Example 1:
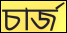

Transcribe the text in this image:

চার্জ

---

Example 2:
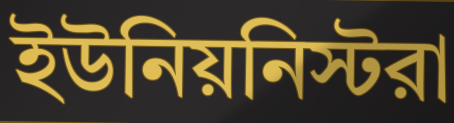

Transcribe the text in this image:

ইউনিয়নিস্টরা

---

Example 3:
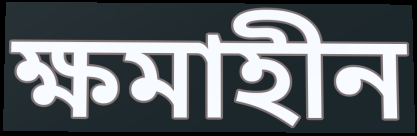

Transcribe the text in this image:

ক্ষমাহীন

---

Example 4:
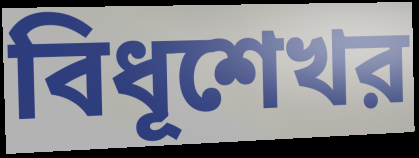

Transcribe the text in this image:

বিধূশেখর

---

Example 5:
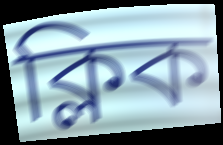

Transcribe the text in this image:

ক্লিক